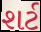
શર્ટ